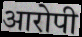
आरोपी